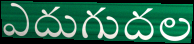
ఎదుగుదల